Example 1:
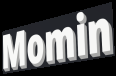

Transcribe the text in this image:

Momin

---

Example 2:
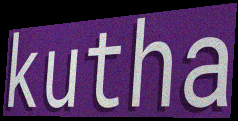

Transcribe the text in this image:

kutha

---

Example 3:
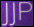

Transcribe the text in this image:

JJP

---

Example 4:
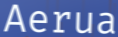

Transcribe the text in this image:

Aerua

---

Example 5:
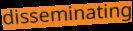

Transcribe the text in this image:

disseminating